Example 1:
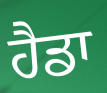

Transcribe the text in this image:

ਹੈਡਾ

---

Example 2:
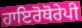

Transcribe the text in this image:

ਹਾਇਰੋਥੋਰੇਪੀ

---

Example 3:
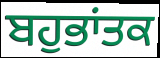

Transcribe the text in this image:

ਬਹੁਭਾਂਤਕ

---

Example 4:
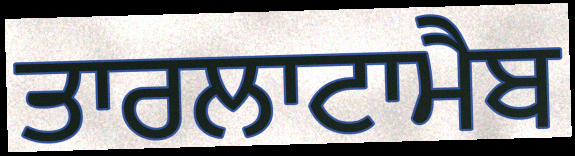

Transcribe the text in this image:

ਤਾਰਲਾਟਾਮੈਬ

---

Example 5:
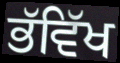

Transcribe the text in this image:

ਭੱਵਿੱਖ